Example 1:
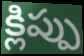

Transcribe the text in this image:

క్లిప్పు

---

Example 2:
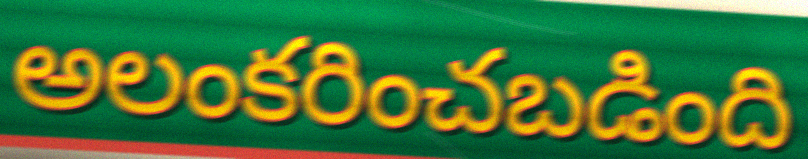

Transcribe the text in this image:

అలంకరించబడింది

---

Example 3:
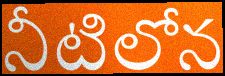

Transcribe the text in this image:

నీటిలోన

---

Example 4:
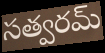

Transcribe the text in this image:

సత్వరమ్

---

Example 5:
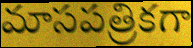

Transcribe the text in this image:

మాసపత్రికగా